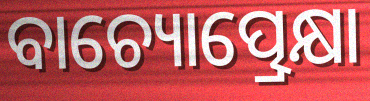
ବାଚ୍ୟୋତ୍ପ୍ରେକ୍ଷା